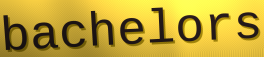
bachelors